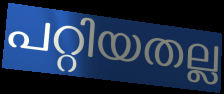
പറ്റിയതല്ല